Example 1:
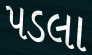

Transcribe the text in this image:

પડલા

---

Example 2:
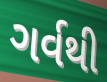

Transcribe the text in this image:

ગર્વથી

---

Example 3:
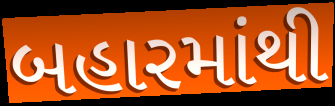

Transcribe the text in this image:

બહારમાંથી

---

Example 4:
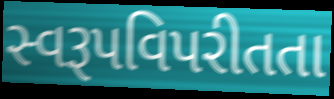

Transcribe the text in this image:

સ્વરૂપવિપરીતતા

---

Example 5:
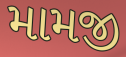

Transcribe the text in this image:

મામજી